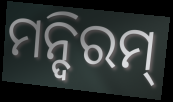
ମନ୍ଦିରମ୍